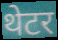
थेटर